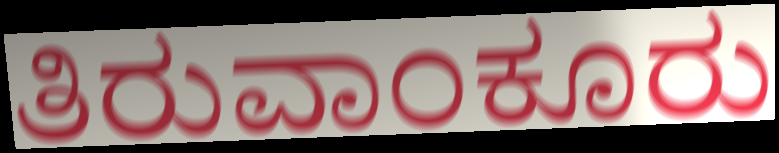
ತಿರುವಾಂಕೂರು